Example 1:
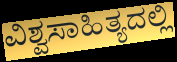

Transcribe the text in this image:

ವಿಶ್ವಸಾಹಿತ್ಯದಲ್ಲಿ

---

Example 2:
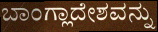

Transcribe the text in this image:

ಬಾಂಗ್ಲಾದೇಶವನ್ನು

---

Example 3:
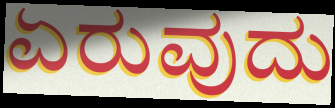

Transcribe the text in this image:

ಏರುವುದು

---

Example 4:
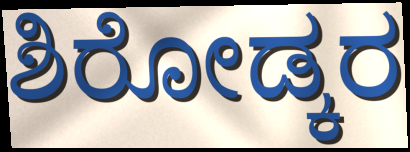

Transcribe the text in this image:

ಶಿರೋಡ್ಕರ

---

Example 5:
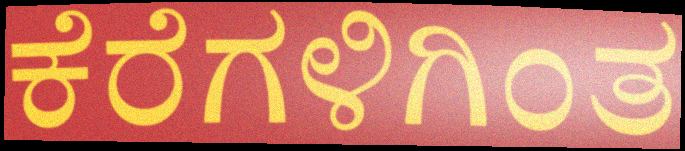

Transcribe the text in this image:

ಕೆರೆಗಳಿಗಿಂತ